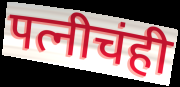
पत्नीचंही